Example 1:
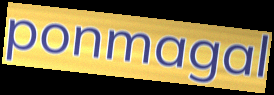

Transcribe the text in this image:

ponmagal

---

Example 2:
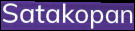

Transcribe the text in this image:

Satakopan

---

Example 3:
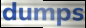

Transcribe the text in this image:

dumps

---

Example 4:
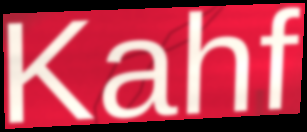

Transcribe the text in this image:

Kahf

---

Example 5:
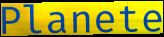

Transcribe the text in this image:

Planete